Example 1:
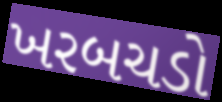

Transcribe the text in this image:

ખરબચડો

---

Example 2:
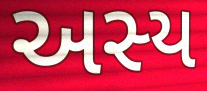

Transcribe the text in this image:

અસ્ય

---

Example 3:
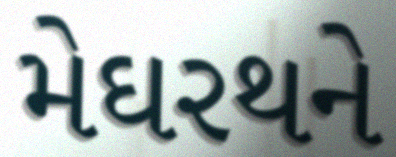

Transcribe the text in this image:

મેઘરથને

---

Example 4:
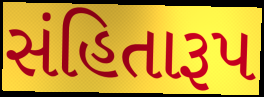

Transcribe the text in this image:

સંહિતારૂપ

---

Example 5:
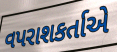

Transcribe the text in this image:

વપરાશકર્તાએ